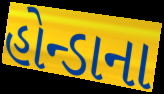
હોન્ડાના